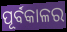
ପୂର୍ବକାଳର